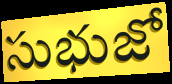
సుభుజో